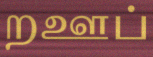
றஊப்